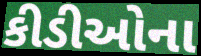
કીડીઓના